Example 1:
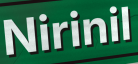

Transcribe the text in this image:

Nirinil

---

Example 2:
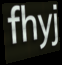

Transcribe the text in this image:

fhyj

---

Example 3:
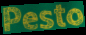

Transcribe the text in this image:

Pesto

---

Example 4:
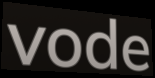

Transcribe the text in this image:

vode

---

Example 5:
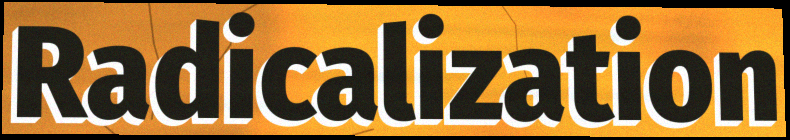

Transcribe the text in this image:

Radicalization